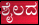
ಶೈಲದ